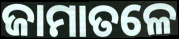
ଜାମାତଳେ